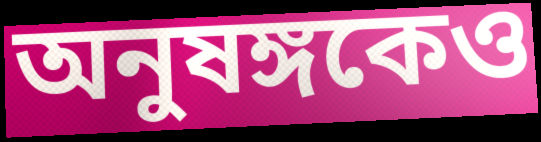
অনুষঙ্গকেও